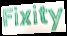
Fixity